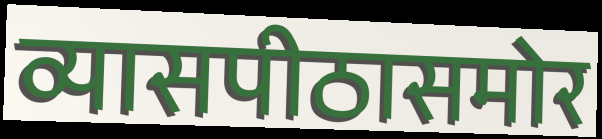
व्यासपीठासमोर